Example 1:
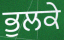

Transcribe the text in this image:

ਭੁਲਕੇ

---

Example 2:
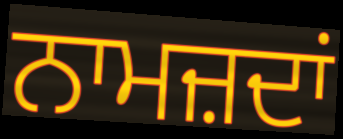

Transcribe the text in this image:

ਨਾਮਜ਼ਦਾਂ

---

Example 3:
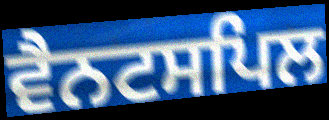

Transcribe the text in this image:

ਵੈਨਟਸਪਿਲ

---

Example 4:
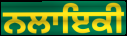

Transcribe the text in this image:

ਨਲਾਇਕੀ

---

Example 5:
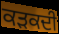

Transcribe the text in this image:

ਕੜਕਦੀ